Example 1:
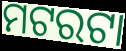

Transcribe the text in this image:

ମଟରଟା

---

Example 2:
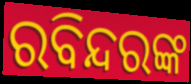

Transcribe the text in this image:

ରବିନ୍ଦରଙ୍କ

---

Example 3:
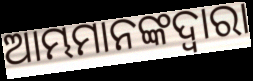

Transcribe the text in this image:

ଆମ୍ଭମାନଙ୍କଦ୍ୱାରା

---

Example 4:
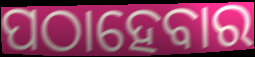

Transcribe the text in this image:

ପଠାହେବାର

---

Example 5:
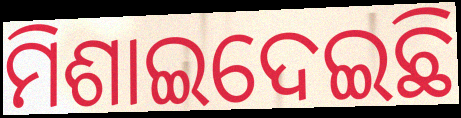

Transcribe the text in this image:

ମିଶାଇଦେଇଛି